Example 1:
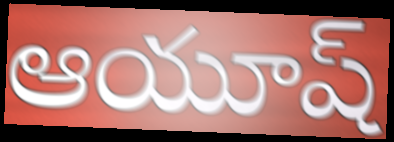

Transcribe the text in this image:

ఆయూష్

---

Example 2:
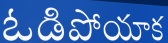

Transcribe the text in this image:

ఓడిపోయాక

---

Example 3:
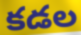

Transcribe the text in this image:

కడల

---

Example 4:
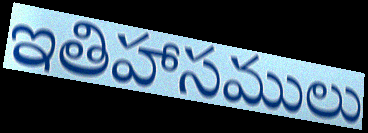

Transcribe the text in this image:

ఇతిహాసములు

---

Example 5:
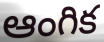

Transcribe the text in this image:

ఆంగిక